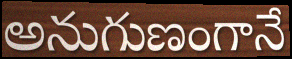
అనుగుణంగానే